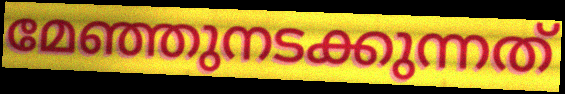
മേഞ്ഞുനടക്കുന്നത്